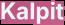
Kalpit